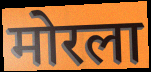
मोरला